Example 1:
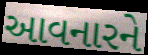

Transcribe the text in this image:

આવનારને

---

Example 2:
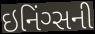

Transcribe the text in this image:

ઇનિંગ્સની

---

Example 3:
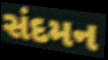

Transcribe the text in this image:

સંદમન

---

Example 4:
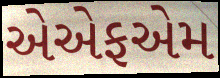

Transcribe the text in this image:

એએફએમ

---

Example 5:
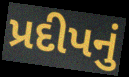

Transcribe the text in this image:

પ્રદીપનું